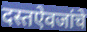
दस्तऐवजांचे